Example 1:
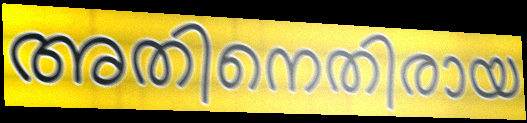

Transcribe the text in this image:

അതിനെതിരായ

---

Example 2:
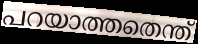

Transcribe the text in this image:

പറയാത്തതെന്ത്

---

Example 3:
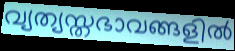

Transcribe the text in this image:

വ്യത്യസ്തഭാവങ്ങളിൽ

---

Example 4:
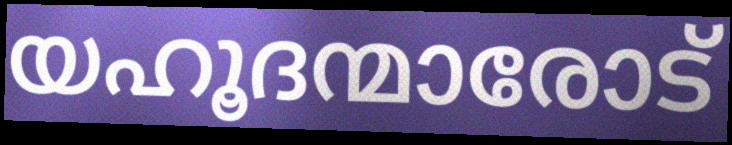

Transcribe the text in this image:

യഹൂദന്മാരോട്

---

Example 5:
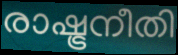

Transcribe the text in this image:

രാഷ്ട്രനീതി